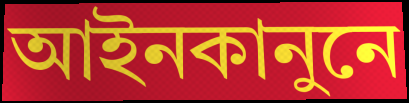
আইনকানুনে